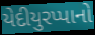
યેદીયુરપ્પાનો